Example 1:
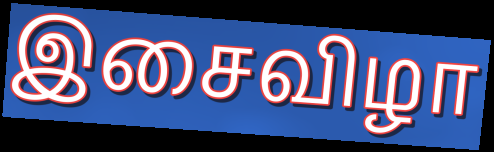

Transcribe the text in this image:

இசைவிழா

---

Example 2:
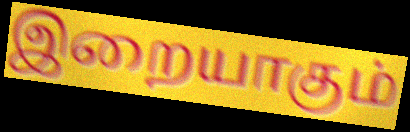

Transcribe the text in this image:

இறையாகும்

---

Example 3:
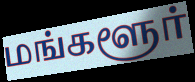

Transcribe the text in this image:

மங்களூர்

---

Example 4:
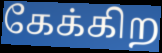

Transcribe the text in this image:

கேக்கிற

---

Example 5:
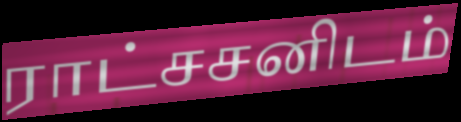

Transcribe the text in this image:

ராட்சசனிடம்